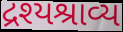
દ્રશ્યશ્રાવ્ય